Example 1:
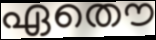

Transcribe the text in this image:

ഏതൌ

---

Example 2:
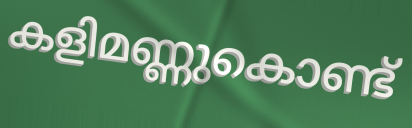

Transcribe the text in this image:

കളിമണ്ണുകൊണ്ട്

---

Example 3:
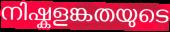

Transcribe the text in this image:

നിഷ്കളങ്കതയുടെ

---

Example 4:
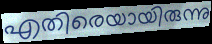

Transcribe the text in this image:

എതിരെയായിരുന്നു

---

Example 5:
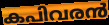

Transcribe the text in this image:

കപിവരൻ